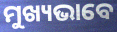
ମୁଖ୍ୟଭାବେ